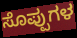
ಸೊಪ್ಪುಗಳ